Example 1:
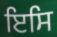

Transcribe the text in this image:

ਇਸਿ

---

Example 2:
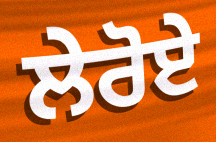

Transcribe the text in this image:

ਲੇਰੋਏ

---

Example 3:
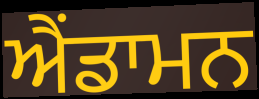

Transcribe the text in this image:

ਐਂਡਾਮਨ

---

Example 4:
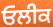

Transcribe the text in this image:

ਓਲੀਕ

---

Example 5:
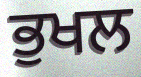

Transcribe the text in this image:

ਭੁਖਲ